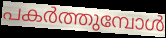
പകർത്തുമ്പോൾ